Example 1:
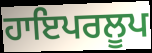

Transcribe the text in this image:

ਹਾਇਪਰਲੂਪ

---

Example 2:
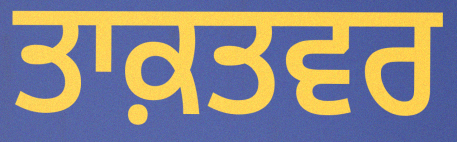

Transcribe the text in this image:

ਤਾਕ਼ਤਵਰ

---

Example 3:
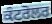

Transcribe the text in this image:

ਕੰਟਰੋਲਰ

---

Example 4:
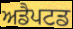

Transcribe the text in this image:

ਅਡੈਪਟਡ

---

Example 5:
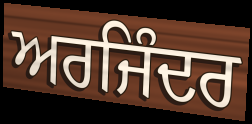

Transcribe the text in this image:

ਅਰਜਿੰਦਰ